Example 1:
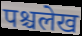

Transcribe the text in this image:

पश्चलेख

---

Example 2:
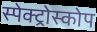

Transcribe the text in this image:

स्पेक्ट्रोस्कोप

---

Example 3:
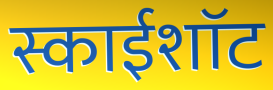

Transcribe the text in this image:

स्काईशॉट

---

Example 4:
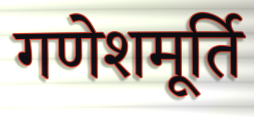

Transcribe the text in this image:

गणेशमूर्ति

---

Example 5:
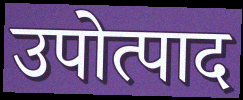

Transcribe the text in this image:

उपोत्पाद